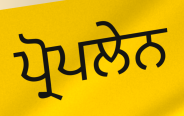
ਪ੍ਰੋਪਲੇਨ